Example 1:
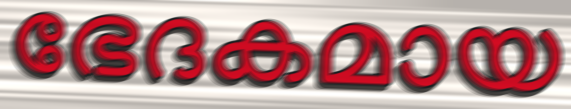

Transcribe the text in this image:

ഭേദകമായ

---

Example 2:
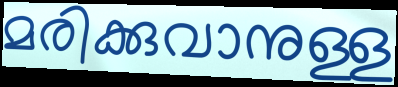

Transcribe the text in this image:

മരിക്കുവാനുള്ള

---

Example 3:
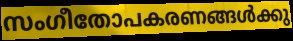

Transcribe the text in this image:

സംഗീതോപകരണങ്ങൾക്കു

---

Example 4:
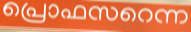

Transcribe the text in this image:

പ്രൊഫസറെന്ന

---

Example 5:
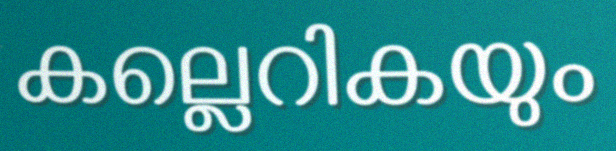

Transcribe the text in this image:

കല്ലെറികയും